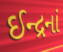
ઈન્દ્રનાં